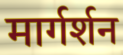
मार्गर्शन